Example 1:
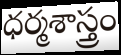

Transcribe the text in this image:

ధర్మశాస్త్రం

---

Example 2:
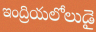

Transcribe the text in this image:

ఇంద్రియలోలుడై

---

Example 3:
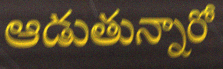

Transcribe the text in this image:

ఆడుతున్నారో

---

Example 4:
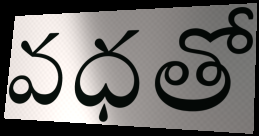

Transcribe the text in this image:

వధతో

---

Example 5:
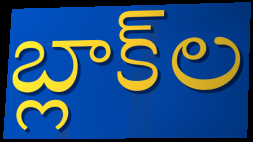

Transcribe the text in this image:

బ్లాక్‌ల